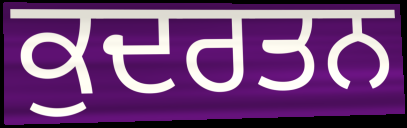
ਕੁਦਰਤਨ